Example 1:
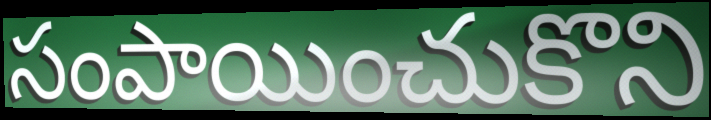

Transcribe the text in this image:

సంపాయించుకొని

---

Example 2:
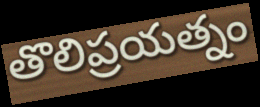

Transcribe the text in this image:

తొలిప్రయత్నం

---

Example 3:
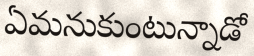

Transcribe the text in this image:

ఏమనుకుంటున్నాడో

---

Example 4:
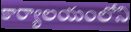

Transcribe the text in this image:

కార్యాలయంలోని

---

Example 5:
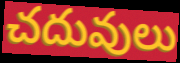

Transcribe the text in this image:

చదువులు